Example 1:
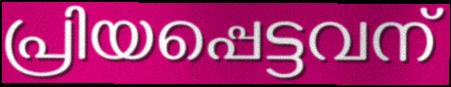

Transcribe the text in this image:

പ്രിയപ്പെട്ടവന്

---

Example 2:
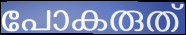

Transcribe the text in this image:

പോകരുത്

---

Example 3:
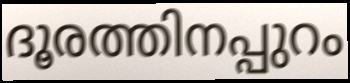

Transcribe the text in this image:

ദൂരത്തിനപ്പുറം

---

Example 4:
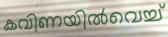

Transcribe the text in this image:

കവിണയിൽവെച്ച്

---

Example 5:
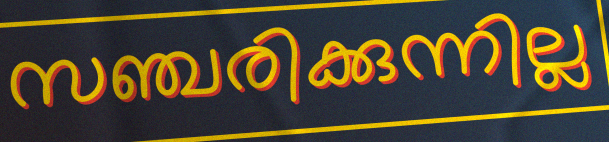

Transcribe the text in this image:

സഞ്ചരിക്കുന്നില്ല